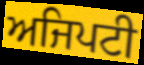
ਅਜਿਪਟੀ